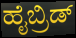
ಹೈಬ್ರಿಡ್